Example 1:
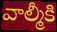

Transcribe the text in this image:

వాల్మీకి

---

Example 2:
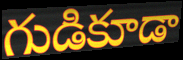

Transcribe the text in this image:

గుడికూడా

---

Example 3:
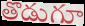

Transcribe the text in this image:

తొడుగూ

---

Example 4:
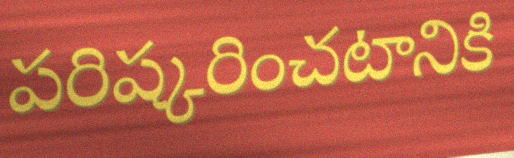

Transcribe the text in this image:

పరిష్కరించటానికి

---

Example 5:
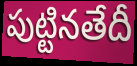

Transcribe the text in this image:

పుట్టినతేదీ